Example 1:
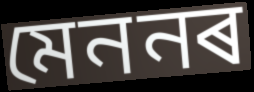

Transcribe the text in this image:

মেননৰ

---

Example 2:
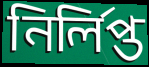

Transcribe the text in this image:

নিৰ্লিপ্ত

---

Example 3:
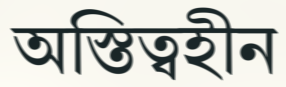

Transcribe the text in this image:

অস্তিত্বহীন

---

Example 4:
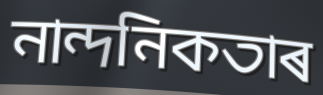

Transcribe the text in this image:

নান্দনিকতাৰ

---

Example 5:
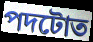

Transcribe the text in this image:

পদটোত